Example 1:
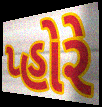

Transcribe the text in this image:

પ્હોરે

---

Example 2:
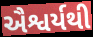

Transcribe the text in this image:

ઐશ્વર્યથી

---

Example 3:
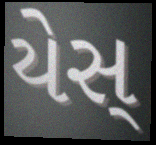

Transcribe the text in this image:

યેસ્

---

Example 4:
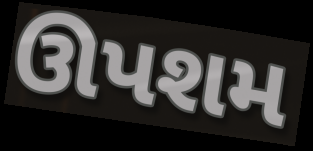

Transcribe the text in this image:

ઊપશમ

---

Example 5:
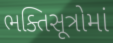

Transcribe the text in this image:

ભક્તિસૂત્રોમાં